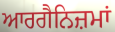
ਆਰਗੈਨਿਜ਼ਮਾਂ